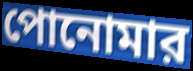
পোনোমার